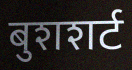
बुशशर्ट